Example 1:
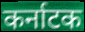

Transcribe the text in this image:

कर्नाटक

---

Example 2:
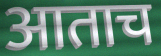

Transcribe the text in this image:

आताच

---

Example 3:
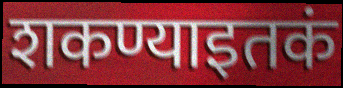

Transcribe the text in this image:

शकण्याइतकं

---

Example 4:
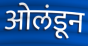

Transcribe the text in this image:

ओलंडून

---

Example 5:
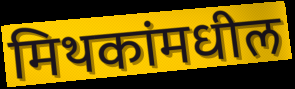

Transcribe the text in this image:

मिथकांमधील